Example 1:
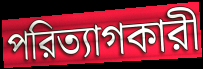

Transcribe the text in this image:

পরিত্যাগকারী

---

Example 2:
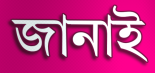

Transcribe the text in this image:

জানাই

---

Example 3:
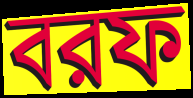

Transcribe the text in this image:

বরফ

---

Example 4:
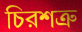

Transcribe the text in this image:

চিরশত্রু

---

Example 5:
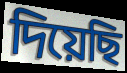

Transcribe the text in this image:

দিয়েছি